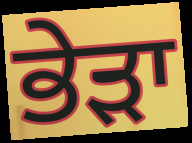
ਭੇੜਾ